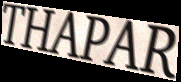
THAPAR